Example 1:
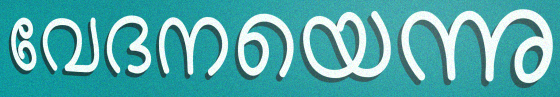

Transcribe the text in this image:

വേദനയെന്നു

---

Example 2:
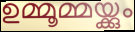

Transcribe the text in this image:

ഉമ്മൂമ്മയ്ക്കും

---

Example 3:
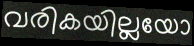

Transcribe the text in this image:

വരികയില്ലയോ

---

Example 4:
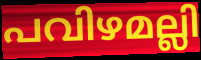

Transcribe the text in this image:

പവിഴമല്ലി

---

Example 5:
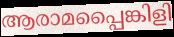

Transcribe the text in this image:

ആരാമപ്പൈങ്കിളി